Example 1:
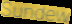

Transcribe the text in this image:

Sundew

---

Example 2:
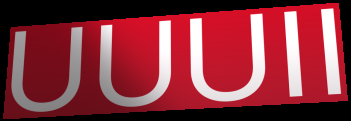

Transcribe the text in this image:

UUUII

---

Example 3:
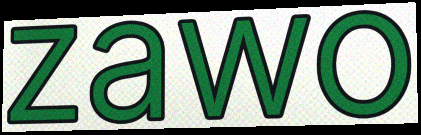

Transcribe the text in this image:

zawo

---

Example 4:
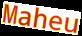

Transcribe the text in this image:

Maheu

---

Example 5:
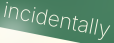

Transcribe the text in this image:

incidentally